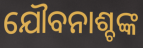
ଯୌବନାଶ୍ଚଙ୍କ